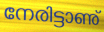
നേരിട്ടാണു്